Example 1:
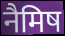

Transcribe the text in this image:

नैमिष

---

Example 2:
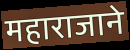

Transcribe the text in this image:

महाराजाने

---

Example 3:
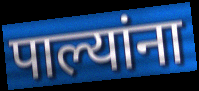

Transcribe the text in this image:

पाल्यांना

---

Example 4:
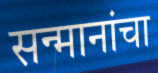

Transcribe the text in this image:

सन्मानांचा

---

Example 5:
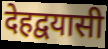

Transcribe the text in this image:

देहद्वयासी